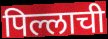
पिल्लाची